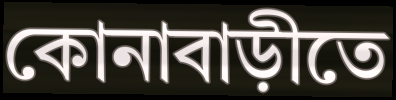
কোনাবাড়ীতে